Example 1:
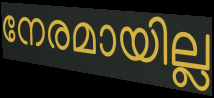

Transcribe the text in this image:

നേരമായില്ല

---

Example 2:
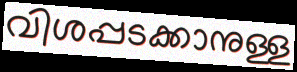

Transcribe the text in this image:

വിശപ്പടക്കാനുള്ള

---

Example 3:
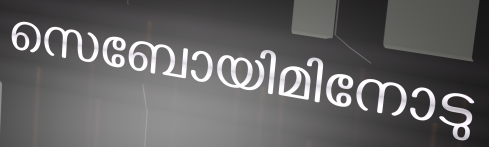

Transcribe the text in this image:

സെബോയിമിനോടു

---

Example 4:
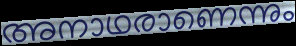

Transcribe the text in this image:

അനാഥരാണെന്നും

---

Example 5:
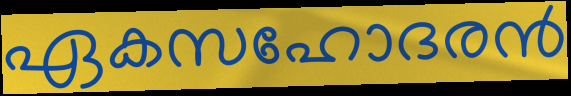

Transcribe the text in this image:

ഏകസഹോദരൻ